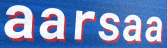
aarsaa